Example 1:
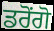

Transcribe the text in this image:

ਡਰੋਂਗੋ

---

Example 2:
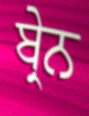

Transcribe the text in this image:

ਬ੍ਰੇਨ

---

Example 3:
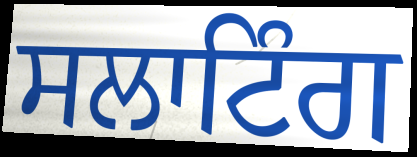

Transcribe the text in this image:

ਸਲਾਟਿੰਗ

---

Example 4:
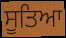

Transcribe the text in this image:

ਸੂਤਿਆ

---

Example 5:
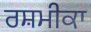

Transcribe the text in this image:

ਰਸ਼ਮੀਕਾ